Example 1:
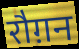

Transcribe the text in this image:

रौग़न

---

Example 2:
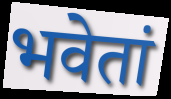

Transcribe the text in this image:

भवेतां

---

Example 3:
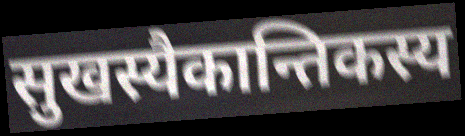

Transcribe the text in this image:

सुखस्यैकान्तिकस्य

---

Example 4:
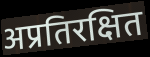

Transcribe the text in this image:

अप्रतिरक्षित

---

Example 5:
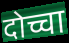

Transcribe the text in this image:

दोच्चा